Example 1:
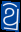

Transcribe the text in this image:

ଥ୍ରି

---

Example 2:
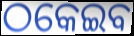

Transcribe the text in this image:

ଠକେଇବ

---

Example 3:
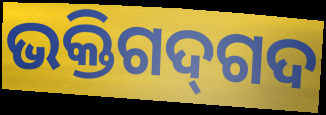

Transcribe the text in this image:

ଭକ୍ତିଗଦ୍‌ଗଦ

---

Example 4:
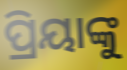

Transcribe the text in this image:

ପ୍ରିୟାଙ୍କୁ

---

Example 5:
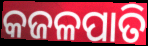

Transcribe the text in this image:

କଜଳପାତି